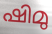
ഷിമു